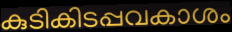
കുടികിടപ്പവകാശം